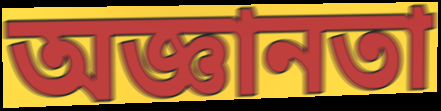
অজ্ঞানতা